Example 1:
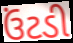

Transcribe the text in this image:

ઉંટડી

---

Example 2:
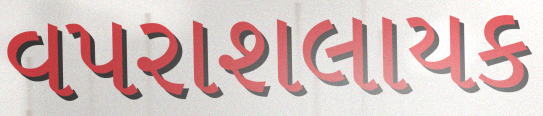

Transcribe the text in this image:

વપરાશલાયક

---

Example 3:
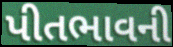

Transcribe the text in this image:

પીતભાવની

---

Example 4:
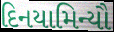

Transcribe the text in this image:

દિનયામિન્યૌ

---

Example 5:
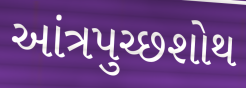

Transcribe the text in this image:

આંત્રપુચ્છશોથ